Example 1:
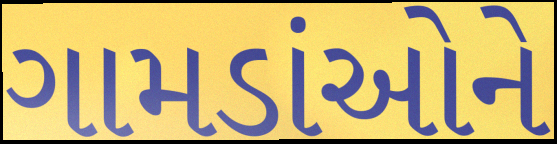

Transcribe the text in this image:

ગામડાંઓને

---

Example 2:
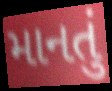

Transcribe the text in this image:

માનતું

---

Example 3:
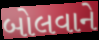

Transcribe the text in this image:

બોલવાને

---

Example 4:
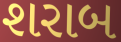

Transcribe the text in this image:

શરાબ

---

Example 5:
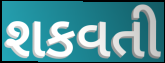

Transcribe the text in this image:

શકવતી